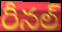
రీనల్